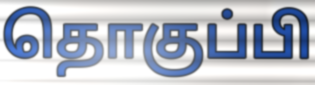
தொகுப்பி